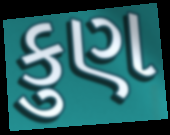
કુણ